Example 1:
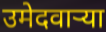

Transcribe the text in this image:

उमेदवाऱ्या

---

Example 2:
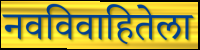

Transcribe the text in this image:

नवविवाहितेला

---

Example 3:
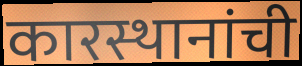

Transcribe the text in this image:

कारस्थानांची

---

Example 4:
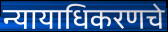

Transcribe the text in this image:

न्यायाधिकरणचे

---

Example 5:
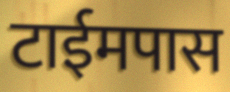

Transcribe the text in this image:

टाईमपास